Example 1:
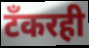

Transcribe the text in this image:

टँकरही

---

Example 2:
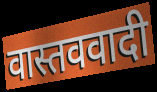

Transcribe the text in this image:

वास्तववादी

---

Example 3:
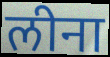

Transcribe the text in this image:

लीना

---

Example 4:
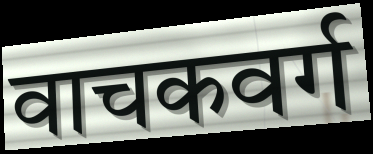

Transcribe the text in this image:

वाचकवर्ग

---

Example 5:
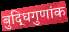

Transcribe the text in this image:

बुद्धिगुणांक